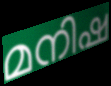
മനിഷ